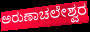
ಅರುಣಾಚಲೇಶ್ವರ